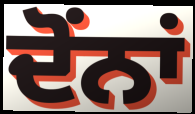
ਦੋਂਨਾਂ